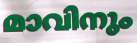
മാവിനും